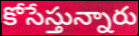
కోసేస్తున్నారు